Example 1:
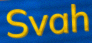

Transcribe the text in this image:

Svah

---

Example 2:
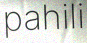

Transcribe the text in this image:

pahili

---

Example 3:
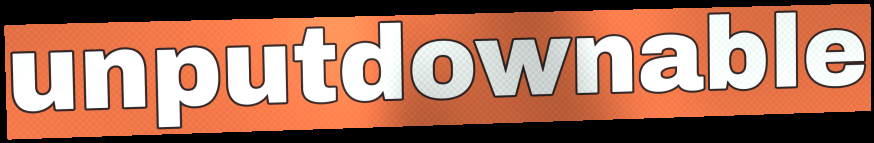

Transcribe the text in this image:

unputdownable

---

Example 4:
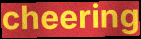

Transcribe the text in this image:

cheering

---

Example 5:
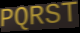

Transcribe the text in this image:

PQRST